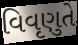
વિવૃણુતે